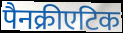
पैनक्रीएटिक